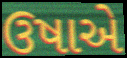
ઉષાએ